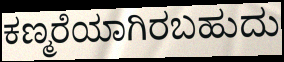
ಕಣ್ಮರೆಯಾಗಿರಬಹುದು